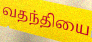
வதந்தியை